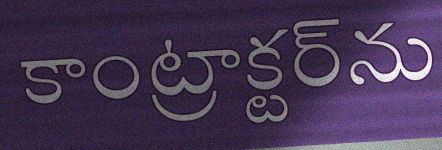
కాంట్రాక్టర్‌ను